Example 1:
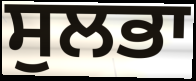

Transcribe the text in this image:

ਸੁਲਭਾ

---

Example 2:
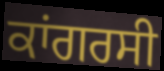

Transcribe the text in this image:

ਕਾਂਗਰਸੀ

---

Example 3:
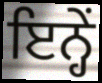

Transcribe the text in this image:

ਇਨ੍ਹੇਂ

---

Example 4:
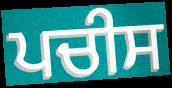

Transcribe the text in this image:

ਪਚੀਸ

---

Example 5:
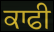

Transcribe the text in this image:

ਕਾਫੀ